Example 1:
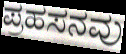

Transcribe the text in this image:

ಪ್ರಹಸನವು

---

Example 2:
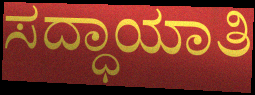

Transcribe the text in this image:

ಸದ್ಧಾಯಾತಿ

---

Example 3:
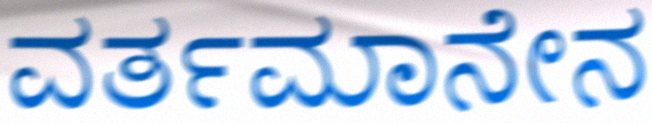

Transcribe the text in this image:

ವರ್ತಮಾನೇನ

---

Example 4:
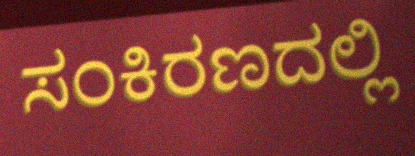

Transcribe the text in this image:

ಸಂಕಿರಣದಲ್ಲಿ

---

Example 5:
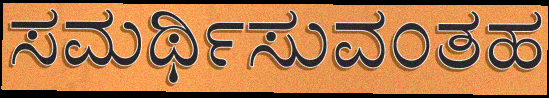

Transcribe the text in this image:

ಸಮರ್ಥಿಸುವಂತಹ